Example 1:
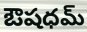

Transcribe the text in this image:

ఔషధమ్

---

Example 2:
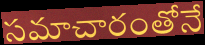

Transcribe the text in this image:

సమాచారంతోనే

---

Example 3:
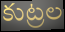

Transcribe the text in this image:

కుట్రల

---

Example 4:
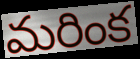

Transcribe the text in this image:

మరింక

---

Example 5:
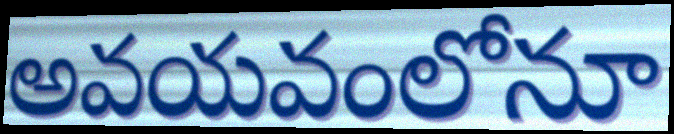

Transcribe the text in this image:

అవయవంలోనూ